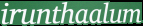
irunthaalum